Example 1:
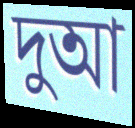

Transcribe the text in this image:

দুআ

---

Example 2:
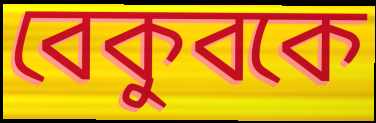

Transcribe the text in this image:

বেকুবকে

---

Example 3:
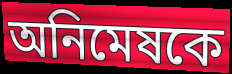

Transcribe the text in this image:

অনিমেষকে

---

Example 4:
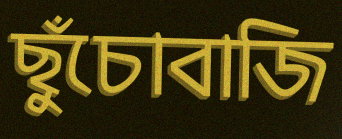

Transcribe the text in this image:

ছুঁচোবাজি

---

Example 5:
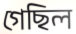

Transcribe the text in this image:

গেছিল